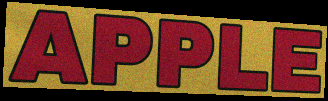
APPLE